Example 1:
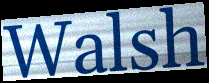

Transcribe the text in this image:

Walsh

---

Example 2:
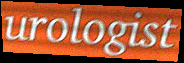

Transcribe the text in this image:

urologist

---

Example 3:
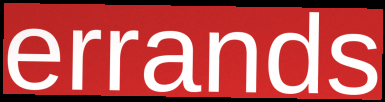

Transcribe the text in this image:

errands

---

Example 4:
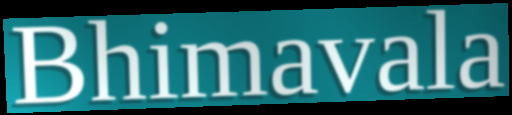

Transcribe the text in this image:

Bhimavala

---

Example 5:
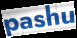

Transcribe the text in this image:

pashu